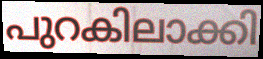
പുറകിലാക്കി